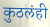
कुठलंही